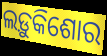
ଲଡ଼ୁକିଶୋର